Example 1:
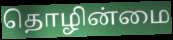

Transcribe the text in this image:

தொழின்மை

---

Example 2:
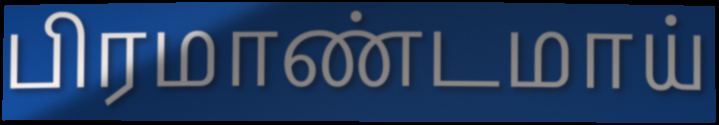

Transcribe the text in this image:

பிரமாண்டமாய்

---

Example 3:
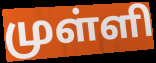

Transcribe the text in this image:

முள்ளி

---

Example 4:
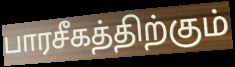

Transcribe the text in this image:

பாரசீகத்திற்கும்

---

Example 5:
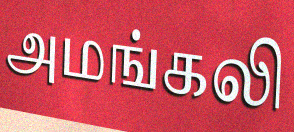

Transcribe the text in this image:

அமங்கலி